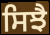
ਸਿਝੈ